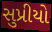
સુપ્રીયો